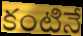
కంటినే